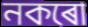
নকৰো